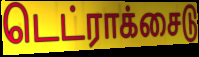
டெட்ராக்சைடு